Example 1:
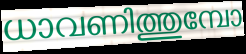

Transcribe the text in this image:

ധാവണിത്തുമ്പോ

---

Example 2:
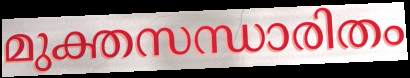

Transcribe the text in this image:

മുക്തസന്ധാരിതം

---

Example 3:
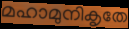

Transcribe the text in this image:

മഹാമുനികൃതേ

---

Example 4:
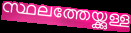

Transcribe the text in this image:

സ്ഥലത്തേയ്ക്കുള്ള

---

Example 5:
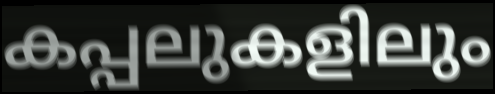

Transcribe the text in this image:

കപ്പലുകളിലും